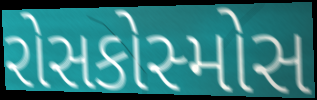
રોસકોસ્મોસ